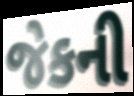
જેકની